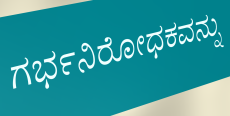
ಗರ್ಭನಿರೋಧಕವನ್ನು